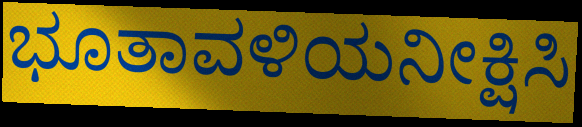
ಭೂತಾವಳಿಯನೀಕ್ಷಿಸಿ